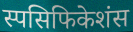
स्पसिफिकेशंस